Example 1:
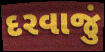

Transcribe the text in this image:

દરવાજું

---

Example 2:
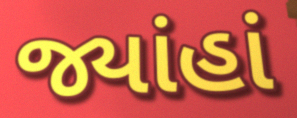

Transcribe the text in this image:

જ્યાંહાં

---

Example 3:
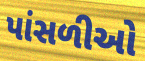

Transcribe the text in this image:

પાંસળીઓ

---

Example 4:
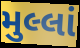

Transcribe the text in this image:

મુલ્લાં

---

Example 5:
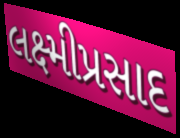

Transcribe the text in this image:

લક્ષ્મીપ્રસાદ